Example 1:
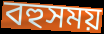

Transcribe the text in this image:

বহুসময়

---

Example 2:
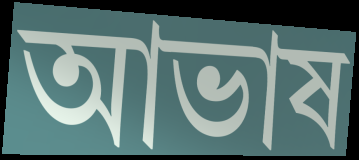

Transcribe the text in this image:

আভাষ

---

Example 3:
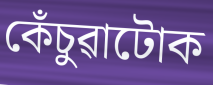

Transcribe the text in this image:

কেঁচুৱাটোক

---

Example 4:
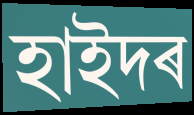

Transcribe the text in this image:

হাইদৰ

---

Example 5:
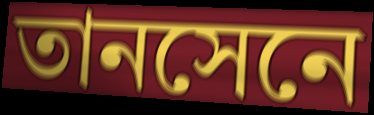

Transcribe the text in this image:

তানসেনে